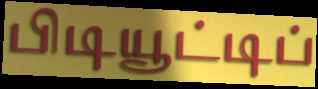
பிடியூட்டிப்